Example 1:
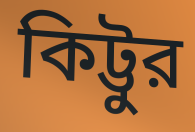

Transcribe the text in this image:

কিট্টুর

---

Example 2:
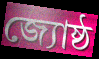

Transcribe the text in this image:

জ্যোষ্ঠ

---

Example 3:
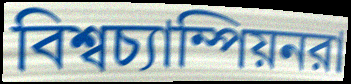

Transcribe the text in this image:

বিশ্বচ্যাম্পিয়নরা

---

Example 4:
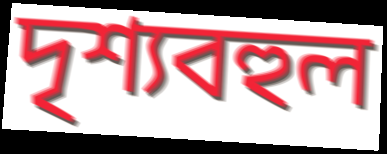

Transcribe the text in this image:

দৃশ্যবহুল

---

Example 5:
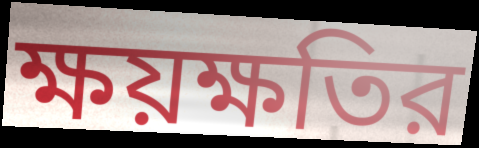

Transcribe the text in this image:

ক্ষয়ক্ষতির